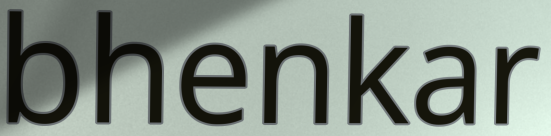
bhenkar